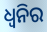
ଧ୍ବନିର